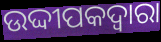
ଉଦ୍ଦୀପକଦ୍ବାରା